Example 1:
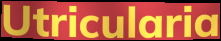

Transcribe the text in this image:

Utricularia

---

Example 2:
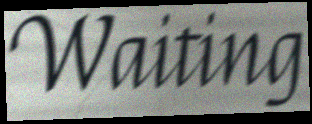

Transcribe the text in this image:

Waiting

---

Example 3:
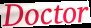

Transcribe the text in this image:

Doctor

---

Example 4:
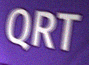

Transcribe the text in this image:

QRT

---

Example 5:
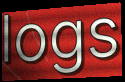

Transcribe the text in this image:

logs